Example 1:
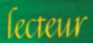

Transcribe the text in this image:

lecteur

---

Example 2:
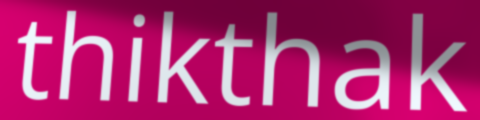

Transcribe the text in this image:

thikthak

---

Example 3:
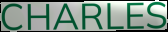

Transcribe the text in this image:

CHARLES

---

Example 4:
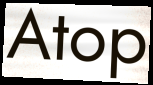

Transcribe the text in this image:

Atop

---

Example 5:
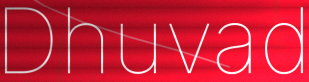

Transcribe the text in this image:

Dhuvad